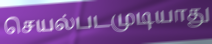
செயல்படமுடியாது